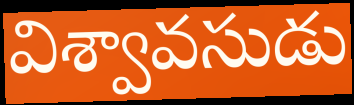
విశ్వావసుడు